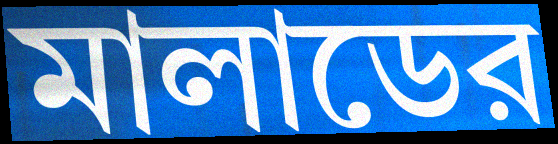
মালাডের